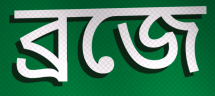
ব্রজে